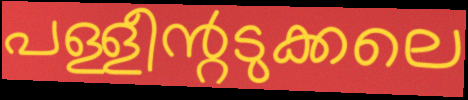
പള്ളീന്റടുക്കലെ